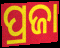
ପ୍ରଜା